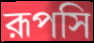
রূপসি